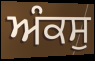
ਅੰਕਸੁ